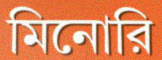
মিনোরি